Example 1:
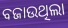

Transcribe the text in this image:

ବଜାଉଥିଲା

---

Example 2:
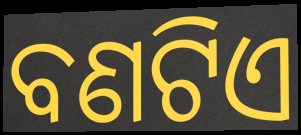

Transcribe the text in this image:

ବଣଟିଏ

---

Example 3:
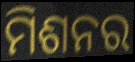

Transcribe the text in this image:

ମିଶନର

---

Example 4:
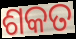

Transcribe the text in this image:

ଶକତ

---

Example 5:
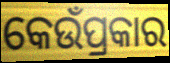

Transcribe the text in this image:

କେଉଁପ୍ରକାର